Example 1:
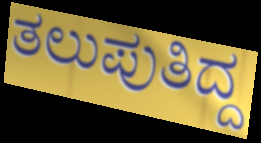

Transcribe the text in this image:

ತಲುಪುತಿದ್ದ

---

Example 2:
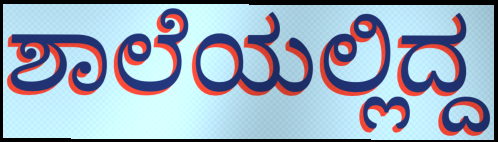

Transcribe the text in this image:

ಶಾಲೆಯಲ್ಲಿದ್ದ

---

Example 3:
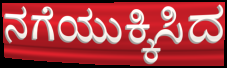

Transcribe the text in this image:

ನಗೆಯುಕ್ಕಿಸಿದ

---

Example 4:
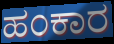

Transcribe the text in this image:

ಹಂಕಾರ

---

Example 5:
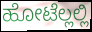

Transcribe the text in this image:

ಹೋಟೆಲ್ಲಲ್ಲಿ